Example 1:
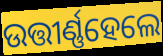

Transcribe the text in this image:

ଉତ୍ତୀର୍ଣ୍ଣହେଲେ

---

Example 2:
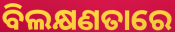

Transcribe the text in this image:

ବିଲକ୍ଷଣତାରେ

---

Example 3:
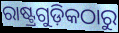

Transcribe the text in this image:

ରାଷ୍ଟ୍ରଗୁଡ଼ିକଠାରୁ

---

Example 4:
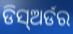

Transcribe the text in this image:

ଡିସ୍ଅର୍ଡର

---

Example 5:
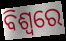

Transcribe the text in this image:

ବିଶ୍ଵରେ